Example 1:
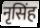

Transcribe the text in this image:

नृसिंह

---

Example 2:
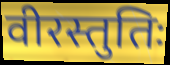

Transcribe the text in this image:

वीरस्तुतिः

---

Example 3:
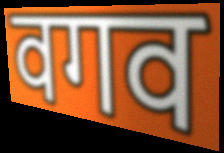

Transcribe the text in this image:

वगव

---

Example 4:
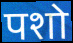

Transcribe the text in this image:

पशो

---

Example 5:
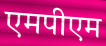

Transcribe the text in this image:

एमपीएम